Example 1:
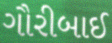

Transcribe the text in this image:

ગૌરીબાઈ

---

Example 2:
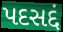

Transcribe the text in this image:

પદસદ્દં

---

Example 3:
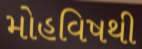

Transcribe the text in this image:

મોહવિષથી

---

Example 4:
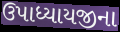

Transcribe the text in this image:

ઉપાધ્યાયજીના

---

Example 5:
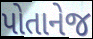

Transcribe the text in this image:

પોતાનેજ